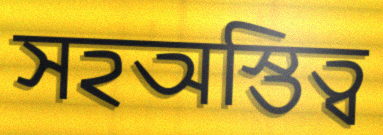
সহঅস্তিত্ব